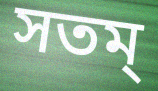
সতম্